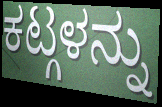
ಕಟ್ಗಳನ್ನು